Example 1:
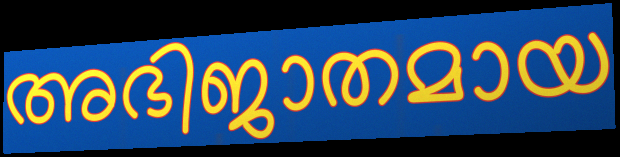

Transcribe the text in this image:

അഭിജാതമായ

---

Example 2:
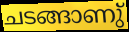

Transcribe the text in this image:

ചടങ്ങാണു്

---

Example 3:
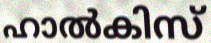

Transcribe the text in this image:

ഹാൽകിസ്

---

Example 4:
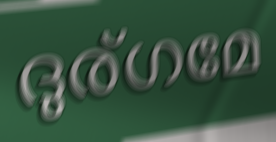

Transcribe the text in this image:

ദുര്ഗമേ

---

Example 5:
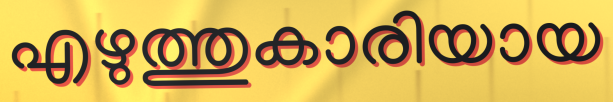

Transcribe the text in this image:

എഴുത്തുകാരിയായ